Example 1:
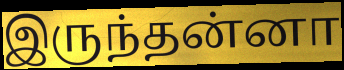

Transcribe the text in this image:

இருந்தன்னா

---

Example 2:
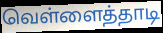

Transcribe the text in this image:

வெள்ளைத்தாடி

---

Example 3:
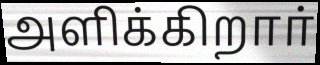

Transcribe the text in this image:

அளிக்கிறார்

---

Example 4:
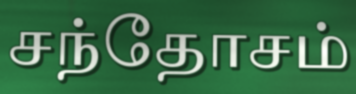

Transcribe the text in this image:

சந்தோசம்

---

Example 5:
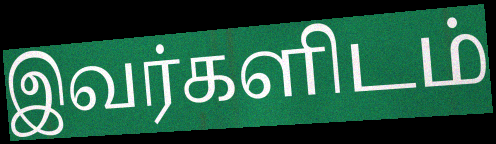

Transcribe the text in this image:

இவர்களிடம்